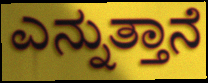
ಎನ್ನುತ್ತಾನೆ